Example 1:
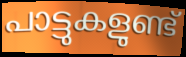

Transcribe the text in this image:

പാട്ടുകളുണ്ട്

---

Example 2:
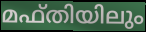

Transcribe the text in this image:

മഫ്തിയിലും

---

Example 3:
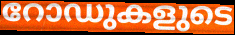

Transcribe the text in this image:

റോഡുകളുടെ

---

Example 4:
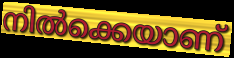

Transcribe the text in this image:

നിൽക്കെയാണ്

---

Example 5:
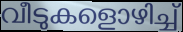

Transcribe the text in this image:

വീടുകളൊഴിച്ച്